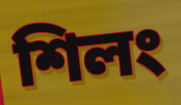
শিলং